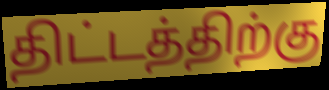
திட்டத்திற்கு